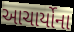
આચાર્યોના